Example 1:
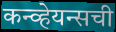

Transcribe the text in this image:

कन्व्हेयन्सची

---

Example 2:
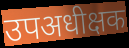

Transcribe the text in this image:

उपअधीक्षक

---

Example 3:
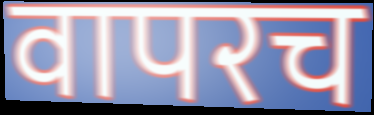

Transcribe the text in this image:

वापरच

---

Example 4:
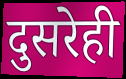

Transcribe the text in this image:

दुसरेही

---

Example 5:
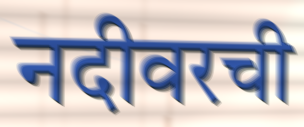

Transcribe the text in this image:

नदीवरची